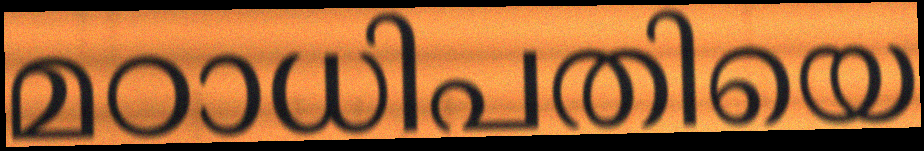
മഠാധിപതിയെ